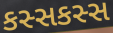
કસ્સકસ્સ